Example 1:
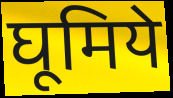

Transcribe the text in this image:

घूमिये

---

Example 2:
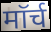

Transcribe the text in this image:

मॉर्च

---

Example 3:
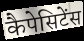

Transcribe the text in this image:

कैपेसिटेंस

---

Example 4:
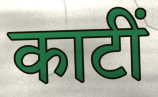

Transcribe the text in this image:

काटीं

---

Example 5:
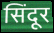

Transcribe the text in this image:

सिंदूर